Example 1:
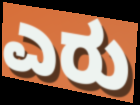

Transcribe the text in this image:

ಎರು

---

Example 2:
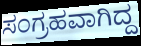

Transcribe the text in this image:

ಸಂಗ್ರಹವಾಗಿದ್ದ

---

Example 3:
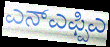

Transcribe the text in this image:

ಎನ್ಎಫ್ಪಿಎ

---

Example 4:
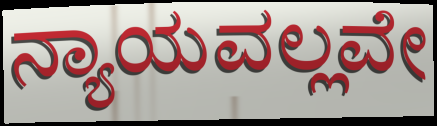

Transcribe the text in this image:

ನ್ಯಾಯವಲ್ಲವೇ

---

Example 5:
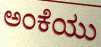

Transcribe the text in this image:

ಅಂಕೆಯು